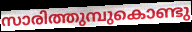
സാരിത്തുമ്പുകൊണ്ടു